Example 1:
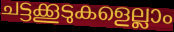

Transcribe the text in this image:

ചട്ടക്കൂടുകളെല്ലാം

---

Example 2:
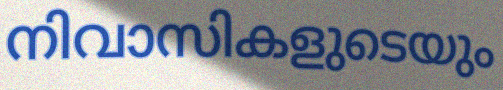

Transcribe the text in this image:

നിവാസികളുടെയും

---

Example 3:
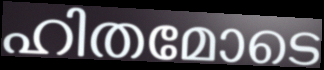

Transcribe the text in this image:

ഹിതമോടെ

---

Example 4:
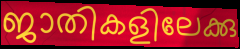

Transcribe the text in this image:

ജാതികളിലേക്കു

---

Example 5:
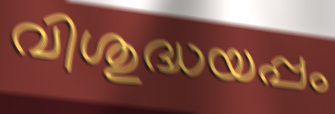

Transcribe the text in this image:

വിശുദ്ധയപ്പം